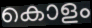
കൊളം